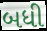
બધી